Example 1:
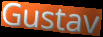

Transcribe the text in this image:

Gustav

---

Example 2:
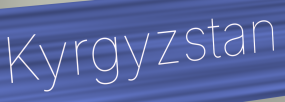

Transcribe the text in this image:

Kyrgyzstan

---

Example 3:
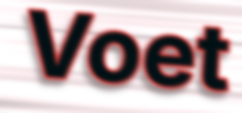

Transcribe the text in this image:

Voet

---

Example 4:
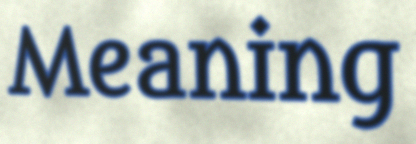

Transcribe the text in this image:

Meaning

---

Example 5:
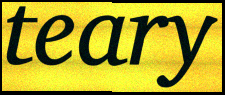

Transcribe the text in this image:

teary